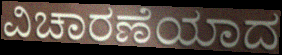
ವಿಚಾರಣೆಯಾದ